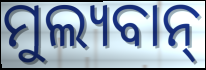
ମୁଲ୍ୟବାନ୍